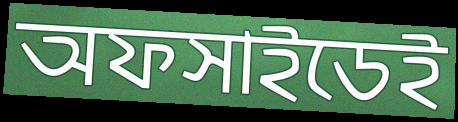
অফসাইডেই